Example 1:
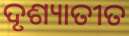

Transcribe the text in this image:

ଦୃଶ୍ୟାତୀତ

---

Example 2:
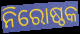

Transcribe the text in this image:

ନିରୋଷ୍ଠକ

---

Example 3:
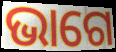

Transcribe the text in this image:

ଭାଗେ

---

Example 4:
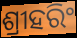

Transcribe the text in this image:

ଶ୍ରୀହରିଂ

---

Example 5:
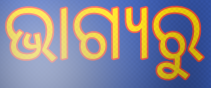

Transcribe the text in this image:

ଭାଗ୍ୟରୁ